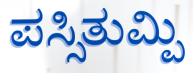
ಪಸ್ಸಿತುಮ್ಪಿ